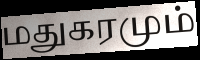
மதுகரமும்